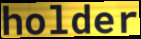
holder